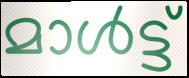
മാൾട്ട്